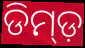
ଡିମ୍ଡ଼